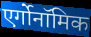
एर्गोनॉमिक